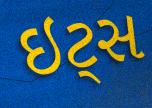
ઇટ્સ